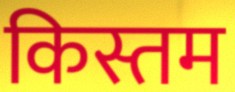
किस्तम